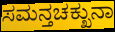
ಸಮನ್ತಚಕ್ಖುನಾ